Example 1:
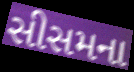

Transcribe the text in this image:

સીસમના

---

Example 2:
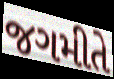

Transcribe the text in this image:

જગમીતે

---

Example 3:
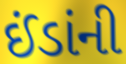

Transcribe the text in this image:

ઈંડાંની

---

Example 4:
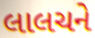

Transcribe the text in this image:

લાલચને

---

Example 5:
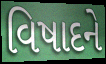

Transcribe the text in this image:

વિષાદને